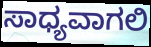
ಸಾಧ್ಯವಾಗಲಿ